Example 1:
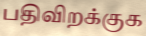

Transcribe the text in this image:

பதிவிறக்குக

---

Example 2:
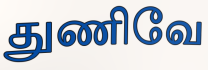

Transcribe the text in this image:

துணிவே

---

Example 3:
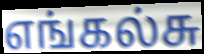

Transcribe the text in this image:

எங்கல்சு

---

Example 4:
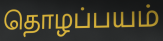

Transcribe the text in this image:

தொழப்பயம்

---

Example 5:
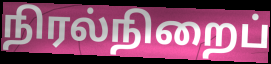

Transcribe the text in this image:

நிரல்நிறைப்